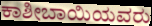
ಕಾಶೀಬಾಯಿಯವರು